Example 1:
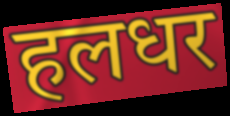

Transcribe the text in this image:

हलधर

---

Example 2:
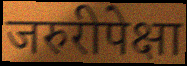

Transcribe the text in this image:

जरुरीपेक्षा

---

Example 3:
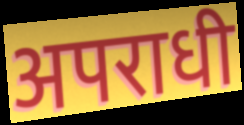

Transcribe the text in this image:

अपराधी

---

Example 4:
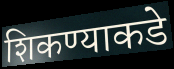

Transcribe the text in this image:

शिकण्याकडे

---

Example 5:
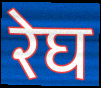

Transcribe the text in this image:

रेघ